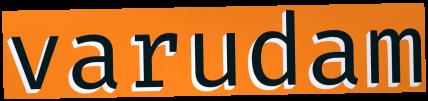
varudam